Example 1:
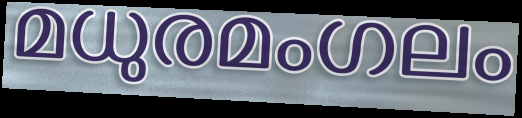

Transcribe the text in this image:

മധുരമംഗലം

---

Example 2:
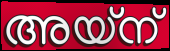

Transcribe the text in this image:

അയ്ന്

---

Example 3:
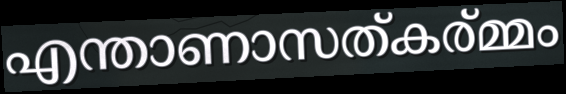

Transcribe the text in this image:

എന്താണാസത്കര്മ്മം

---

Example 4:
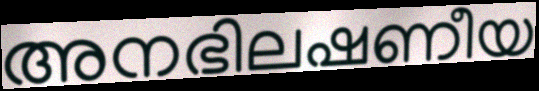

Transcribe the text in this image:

അനഭിലഷണീയ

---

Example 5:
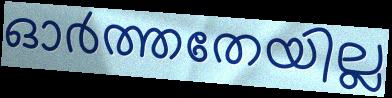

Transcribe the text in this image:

ഓർത്തതേയില്ല